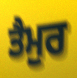
ਤੈਮੁਰ